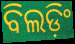
ବିଲଡ଼ିଂ